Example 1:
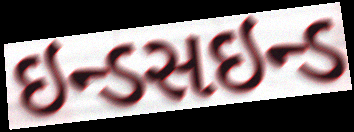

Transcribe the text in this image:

ઇન્ડસઇન્ડ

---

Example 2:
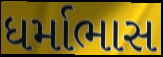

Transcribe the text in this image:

ધર્માભાસ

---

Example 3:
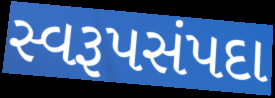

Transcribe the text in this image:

સ્વરૂપસંપદા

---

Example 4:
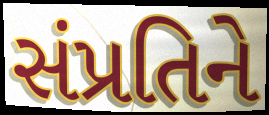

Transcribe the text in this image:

સંપ્રતિને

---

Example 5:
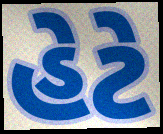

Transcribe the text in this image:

હેટે